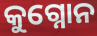
କୁଗ୍ନୋନ